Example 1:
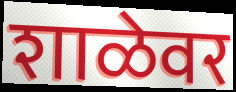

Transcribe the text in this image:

शाळेवर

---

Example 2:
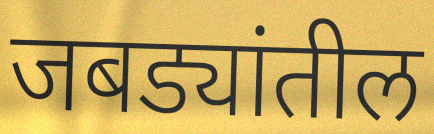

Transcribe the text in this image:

जबड्यांतील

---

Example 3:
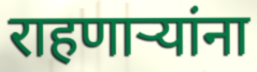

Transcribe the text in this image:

राहणाऱ्यांना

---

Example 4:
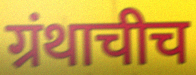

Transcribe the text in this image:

ग्रंथाचीच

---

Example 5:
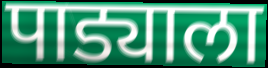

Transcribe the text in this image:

पाड्याला